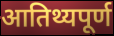
आतिथ्यपूर्ण